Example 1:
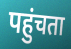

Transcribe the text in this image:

पहुंचता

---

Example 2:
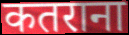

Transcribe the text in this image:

कतराना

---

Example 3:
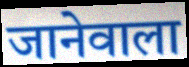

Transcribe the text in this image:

जानेवाला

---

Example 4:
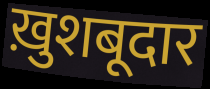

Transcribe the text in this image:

ख़ुशबूदार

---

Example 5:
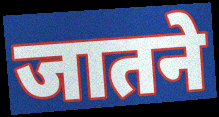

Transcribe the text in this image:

जातने